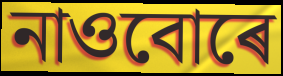
নাওবোৰে